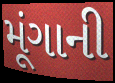
મૂંગાની